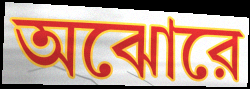
অঝোরে